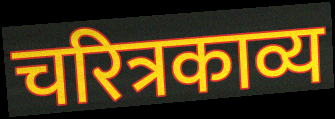
चरित्रकाव्य